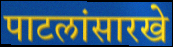
पाटलांसारखे